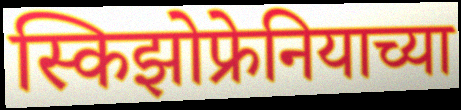
स्किझोफ्रेनियाच्या